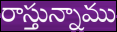
రాస్తున్నాము